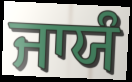
ਜਾਯੰ